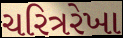
ચરિત્રરેખા